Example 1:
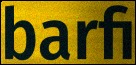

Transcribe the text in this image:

barfi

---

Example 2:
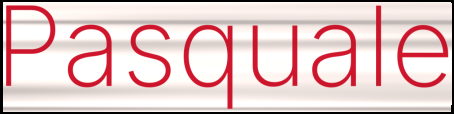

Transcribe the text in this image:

Pasquale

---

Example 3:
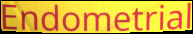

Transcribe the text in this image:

Endometrial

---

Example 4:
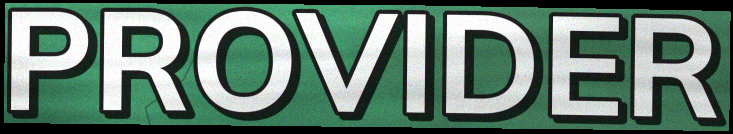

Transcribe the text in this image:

PROVIDER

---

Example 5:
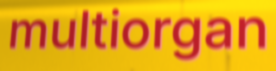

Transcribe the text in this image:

multiorgan